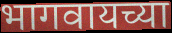
भागवायच्या